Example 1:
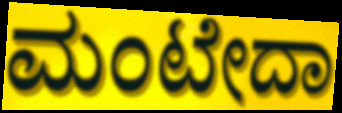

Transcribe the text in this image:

ಮಂಟೇದಾ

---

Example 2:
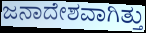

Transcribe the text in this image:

ಜನಾದೇಶವಾಗಿತ್ತು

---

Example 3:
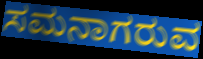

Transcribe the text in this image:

ಸಮನಾಗರುವ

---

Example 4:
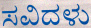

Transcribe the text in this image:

ಸವಿದಳು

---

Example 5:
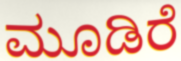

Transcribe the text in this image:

ಮೂಡಿರೆ